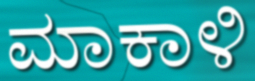
ಮಾಕಾಳಿ